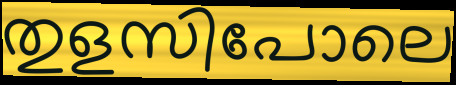
തുളസിപോലെ